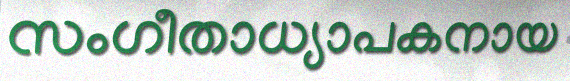
സംഗീതാധ്യാപകനായ